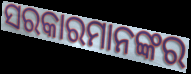
ସରକାରମାନଙ୍କର